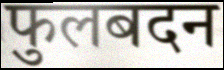
फुलबदन